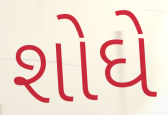
શોઘે